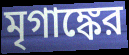
মৃগাঙ্কের